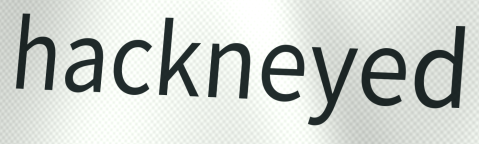
hackneyed